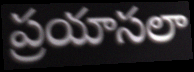
ప్రయాసలా